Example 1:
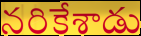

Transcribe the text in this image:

నరికేశాడు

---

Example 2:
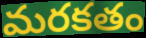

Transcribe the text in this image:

మరకతం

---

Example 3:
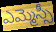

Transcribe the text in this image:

ఎమ్మెస్సీ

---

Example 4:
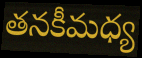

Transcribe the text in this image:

తనకీమధ్య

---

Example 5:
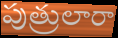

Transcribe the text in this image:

పుత్రులారా